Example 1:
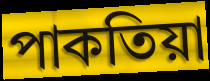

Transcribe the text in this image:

পাকতিয়া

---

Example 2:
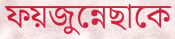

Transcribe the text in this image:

ফয়জুন্নেছাকে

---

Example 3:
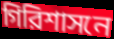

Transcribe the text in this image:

গিরিশাসনে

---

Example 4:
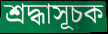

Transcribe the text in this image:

শ্রদ্ধাসূচক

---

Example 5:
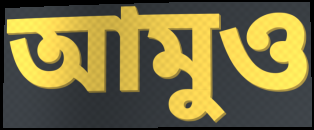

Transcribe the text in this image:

আমুও